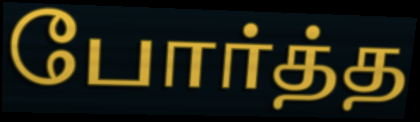
போர்த்த